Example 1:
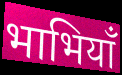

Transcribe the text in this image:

भाभियाँ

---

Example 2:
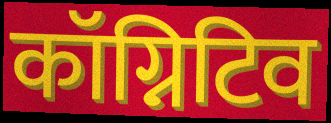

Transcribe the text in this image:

कॉग्निटिव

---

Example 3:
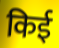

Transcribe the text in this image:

किई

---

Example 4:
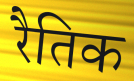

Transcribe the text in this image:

रैतिक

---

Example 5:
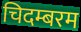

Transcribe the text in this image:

चिदम्बरम